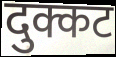
दुक्कट